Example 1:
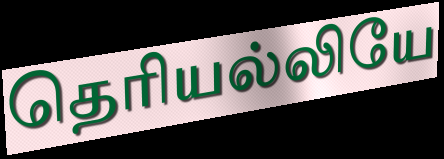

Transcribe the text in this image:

தெரியல்லியே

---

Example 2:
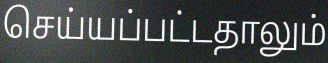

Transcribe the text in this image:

செய்யப்பட்டதாலும்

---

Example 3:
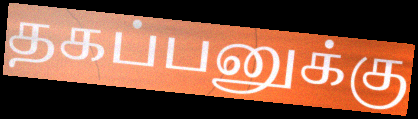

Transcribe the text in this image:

தகப்பனுக்கு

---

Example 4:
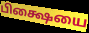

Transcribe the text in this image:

பிக்ஷையை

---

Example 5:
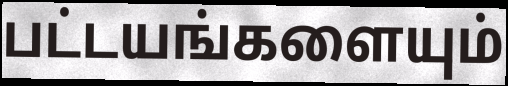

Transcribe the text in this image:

பட்டயங்களையும்